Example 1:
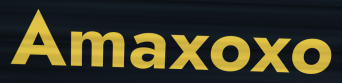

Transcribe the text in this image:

Amaxoxo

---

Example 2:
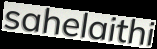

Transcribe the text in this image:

sahelaithi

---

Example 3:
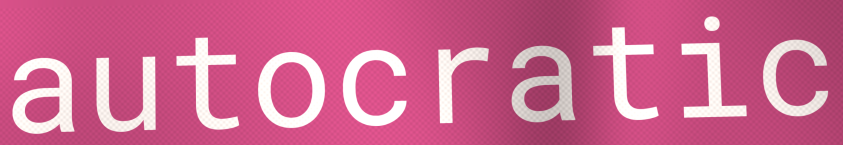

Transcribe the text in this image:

autocratic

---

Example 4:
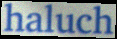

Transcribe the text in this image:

haluch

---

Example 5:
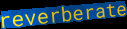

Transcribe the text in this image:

reverberate